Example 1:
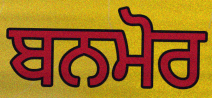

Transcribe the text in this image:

ਬਨਮੋਰ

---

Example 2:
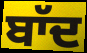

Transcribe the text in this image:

ਬਾੱਦ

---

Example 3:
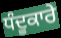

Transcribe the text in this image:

ਧੰਦੂਕਾਰੇ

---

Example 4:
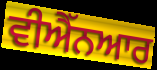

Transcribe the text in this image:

ਵੀਐੱਨਆਰ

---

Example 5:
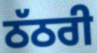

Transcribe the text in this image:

ਠੱਠਰੀ